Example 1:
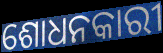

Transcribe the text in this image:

ଶୋଧନକାରୀ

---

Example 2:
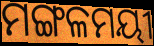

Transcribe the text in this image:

ମଙ୍ଗଳମୟୀ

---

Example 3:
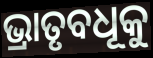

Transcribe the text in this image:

ଭ୍ରାତୃବଧୂକୁ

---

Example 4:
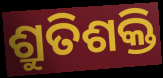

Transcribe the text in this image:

ଶ୍ରୁତିଶକ୍ତି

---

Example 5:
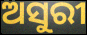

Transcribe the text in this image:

ଅସୁରୀ